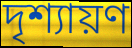
দৃশ্যায়ণ